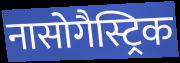
नासोगैस्ट्रिक